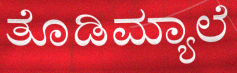
ತೊಡಿಮ್ಯಾಲೆ